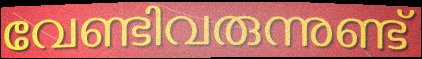
വേണ്ടിവരുന്നുണ്ട്